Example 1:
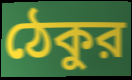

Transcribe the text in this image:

ঠেকুর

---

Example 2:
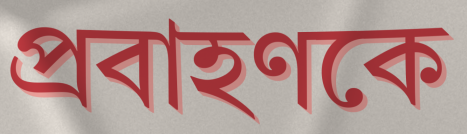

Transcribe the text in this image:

প্রবাহণকে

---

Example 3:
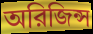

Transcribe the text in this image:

অরিজিন্স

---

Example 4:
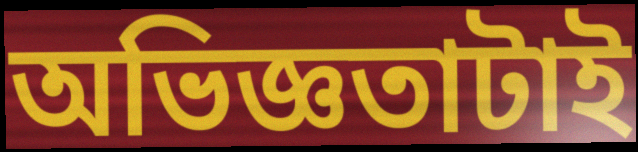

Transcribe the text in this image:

অভিজ্ঞতাটাই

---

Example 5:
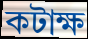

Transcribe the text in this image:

কটাক্ষ